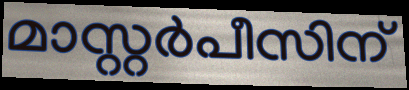
മാസ്റ്റർപീസിന്